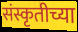
संस्कृतीच्या